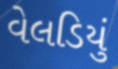
વેલડિયું